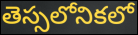
తెస్సలోనికలో